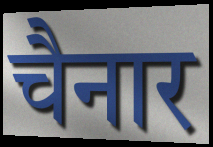
चैनार